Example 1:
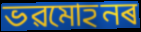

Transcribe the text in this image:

ভৱমোহনৰ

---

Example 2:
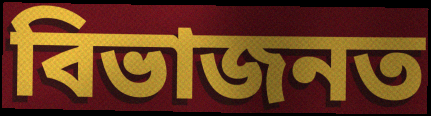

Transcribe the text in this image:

বিভাজনত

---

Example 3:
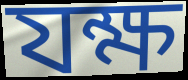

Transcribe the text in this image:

যক্ষ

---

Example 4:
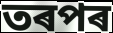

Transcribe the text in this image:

তৰপৰ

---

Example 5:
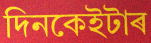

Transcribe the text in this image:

দিনকেইটাৰ